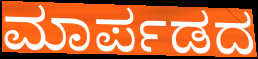
ಮಾರ್ಪಡದ